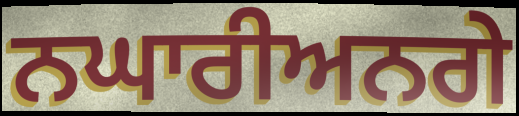
ਨਘਾਰੀਅਨਗੇ